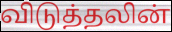
விடுத்தலின்